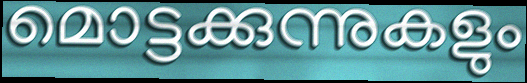
മൊട്ടക്കുന്നുകളും